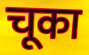
चूका